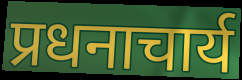
प्रधनाचार्य